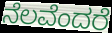
ನೆಲವೆಂದರೆ